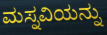
ಮಸ್ನವಿಯನ್ನು